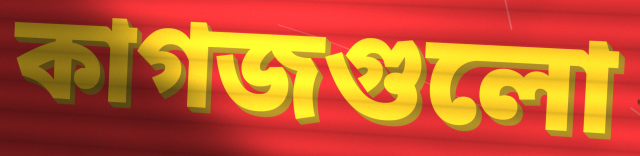
কাগজগুলো